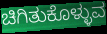
ಚಿಗಿತುಕೊಳ್ಳುವ